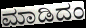
ಮಾಡಿದಂ